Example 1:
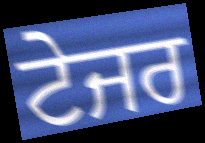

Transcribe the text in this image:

ਟੇਜਰ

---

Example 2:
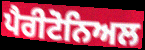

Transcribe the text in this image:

ਪੈਰੀਟੋਨਿਅਲ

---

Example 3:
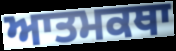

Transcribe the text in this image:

ਆਤਮਕਥਾ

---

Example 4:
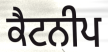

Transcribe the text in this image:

ਕੈਟਨੀਪ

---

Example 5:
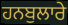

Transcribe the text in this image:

ਹਨਬੁਲਾਰੇ